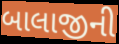
બાલાજીની